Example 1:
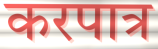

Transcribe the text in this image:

करपात्र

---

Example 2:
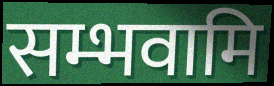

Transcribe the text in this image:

सम्भवामि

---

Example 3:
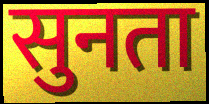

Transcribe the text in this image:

सुनता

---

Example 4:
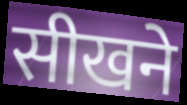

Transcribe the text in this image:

सीखने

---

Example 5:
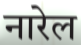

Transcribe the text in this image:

नारेल